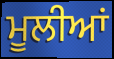
ਮੂਲੀਆਂ